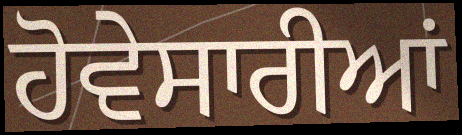
ਹੋਵੇਸਾਰੀਆਂ